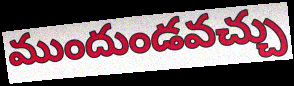
ముందుండవచ్చు